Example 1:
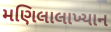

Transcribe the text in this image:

મણિલાલાખ્યાન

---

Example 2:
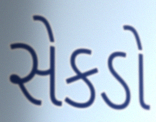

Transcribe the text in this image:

સેકડો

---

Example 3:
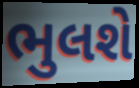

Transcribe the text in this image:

ભુલશે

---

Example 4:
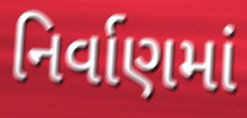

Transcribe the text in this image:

નિર્વાણમાં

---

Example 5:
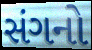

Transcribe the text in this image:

સંગનો